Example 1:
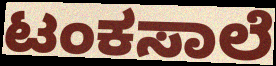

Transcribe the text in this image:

ಟಂಕಸಾಲೆ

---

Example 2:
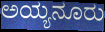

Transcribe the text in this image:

ಅಯ್ಯನೂರು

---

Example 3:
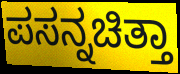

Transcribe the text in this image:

ಪಸನ್ನಚಿತ್ತಾ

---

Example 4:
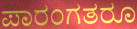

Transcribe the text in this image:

ಪಾರಂಗತರೂ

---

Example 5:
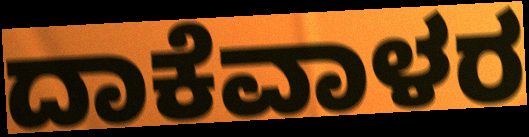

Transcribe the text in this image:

ದಾಕೆವಾಳರ